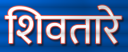
शिवतारे